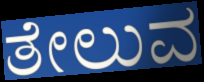
ತೇಲುವ